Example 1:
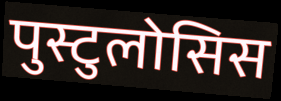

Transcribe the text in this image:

पुस्टुलोसिस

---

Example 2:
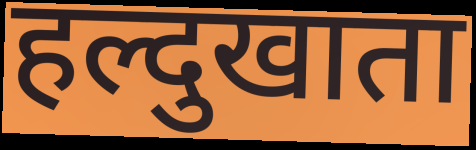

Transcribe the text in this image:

हल्दुखाता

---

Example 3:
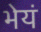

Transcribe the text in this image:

भेयं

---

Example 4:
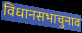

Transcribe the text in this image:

विधानसभाचुनाव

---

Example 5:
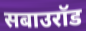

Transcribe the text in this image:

सबाउरॉड